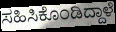
ಸಹಿಸಿಕೊಂಡಿದ್ದಾಳೆ